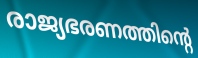
രാജ്യഭരണത്തിന്റെ